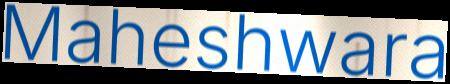
Maheshwara